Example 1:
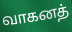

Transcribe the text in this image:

வாகனத்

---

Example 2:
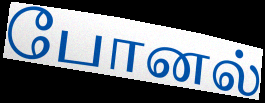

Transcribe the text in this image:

போனல்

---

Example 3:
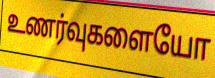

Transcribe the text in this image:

உணர்வுகளையோ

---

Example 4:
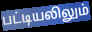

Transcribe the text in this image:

பட்டியலிலும்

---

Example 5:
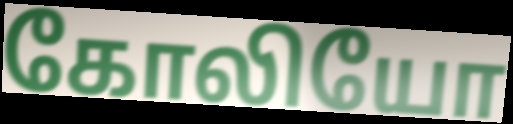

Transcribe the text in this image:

கோலியோ